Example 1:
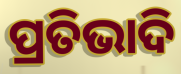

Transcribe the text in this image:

ପ୍ରତିଭାଦି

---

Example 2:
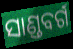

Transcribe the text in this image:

ସାଣ୍ଡବର୍ଗ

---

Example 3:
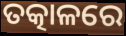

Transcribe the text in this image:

ତତ୍କାଳରେ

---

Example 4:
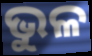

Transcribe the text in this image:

ଭୁଳ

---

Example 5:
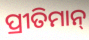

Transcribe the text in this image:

ପ୍ରୀତିମାନ୍